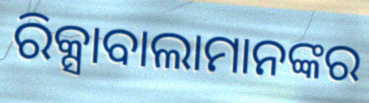
ରିକ୍ସାବାଲାମାନଙ୍କର